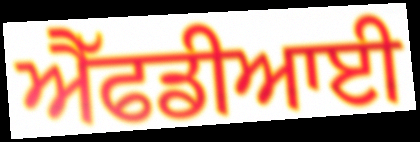
ਐੱਫਡੀਆਈ